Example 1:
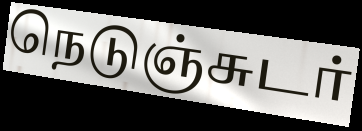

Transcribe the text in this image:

நெடுஞ்சுடர்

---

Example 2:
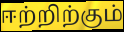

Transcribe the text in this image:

ஈற்றிற்கும்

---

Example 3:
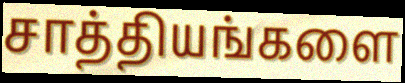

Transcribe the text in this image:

சாத்தியங்களை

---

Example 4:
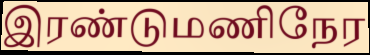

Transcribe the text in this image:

இரண்டுமணிநேர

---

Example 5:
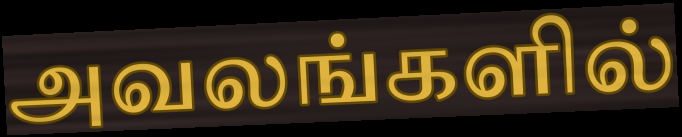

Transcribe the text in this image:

அவலங்களில்